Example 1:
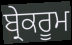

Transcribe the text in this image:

ਬ੍ਰੇਕਰੂਮ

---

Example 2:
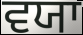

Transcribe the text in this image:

ਵਯਾ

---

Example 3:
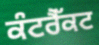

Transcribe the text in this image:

ਕੰਟਰੈੱਕਟ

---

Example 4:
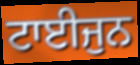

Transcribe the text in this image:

ਟਾਈਜੁਨ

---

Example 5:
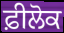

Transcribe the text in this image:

ਫ਼ੀਲੋਕ